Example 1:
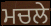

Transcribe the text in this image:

ਮਚਲੇ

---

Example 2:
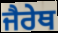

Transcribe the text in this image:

ਜੈਰੇਥ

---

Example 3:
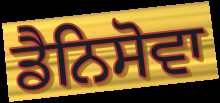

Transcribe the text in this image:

ਡੈਨਿਸੋਵਾ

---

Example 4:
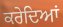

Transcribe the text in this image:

ਕਰੇਦਿਆਂ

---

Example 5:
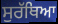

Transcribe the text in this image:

ਸੁਰੱਥਿਆ